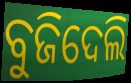
ବୁଜିଦେଲି